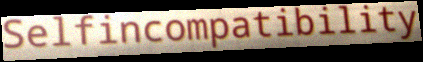
Selfincompatibility